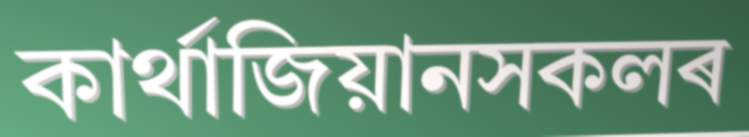
কাৰ্থাজিয়ানসকলৰ